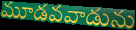
మూడవవాడును